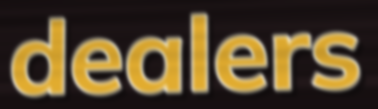
dealers